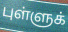
புள்ளுக்